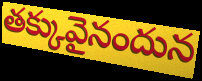
తక్కువైనందున